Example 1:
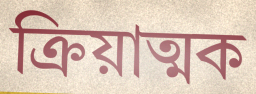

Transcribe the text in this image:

ক্ৰিয়াত্মক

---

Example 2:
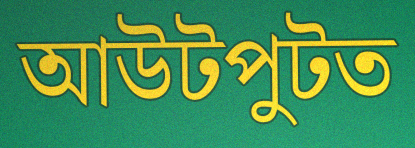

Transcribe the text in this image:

আউটপুটত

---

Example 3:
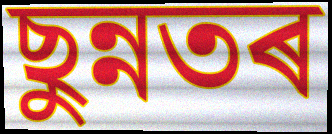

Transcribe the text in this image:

ছুন্নতৰ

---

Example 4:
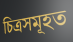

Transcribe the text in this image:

চিত্ৰসমূহত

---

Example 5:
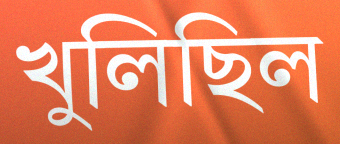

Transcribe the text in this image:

খুলিছিল